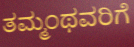
ತಮ್ಮಂಥವರಿಗೆ